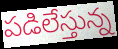
పడిలేస్తున్న